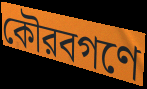
কৌরবগণে